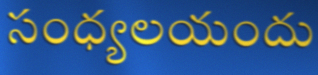
సంధ్యలయందు